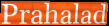
Prahalad